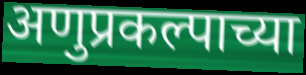
अणुप्रकल्पाच्या